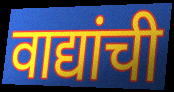
वाद्यांची